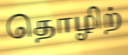
தொழிற்